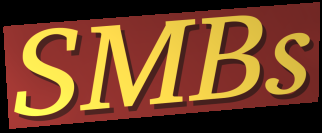
SMBs